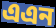
এএন